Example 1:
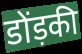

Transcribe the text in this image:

डोंड़की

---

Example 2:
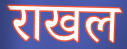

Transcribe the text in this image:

राखल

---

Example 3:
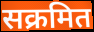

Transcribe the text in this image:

सक्रमित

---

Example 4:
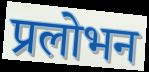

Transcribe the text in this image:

प्रलोभन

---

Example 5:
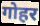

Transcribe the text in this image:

गोहर